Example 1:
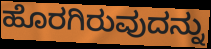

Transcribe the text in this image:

ಹೊರಗಿರುವುದನ್ನು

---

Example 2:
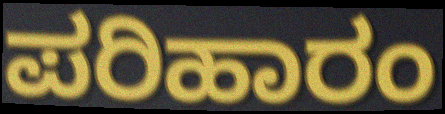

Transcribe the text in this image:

ಪರಿಹಾರಂ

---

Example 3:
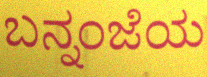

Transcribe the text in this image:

ಬನ್ನಂಜೆಯ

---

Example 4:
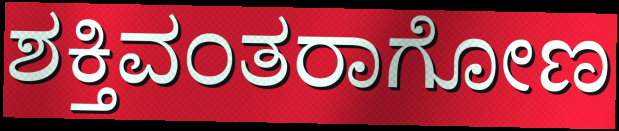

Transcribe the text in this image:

ಶಕ್ತಿವಂತರಾಗೋಣ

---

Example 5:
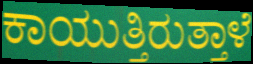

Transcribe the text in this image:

ಕಾಯುತ್ತಿರುತ್ತಾಳೆ